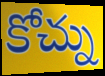
కోచ్ను